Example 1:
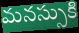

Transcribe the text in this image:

మనస్సుకి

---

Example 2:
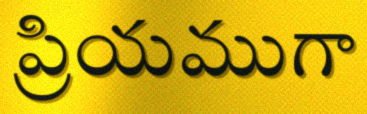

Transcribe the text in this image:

ప్రియముగా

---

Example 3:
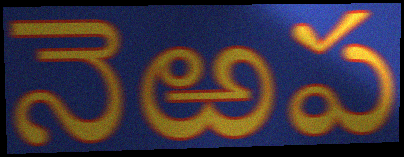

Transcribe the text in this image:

నెఱప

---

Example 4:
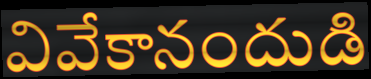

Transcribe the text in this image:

వివేకానందుడి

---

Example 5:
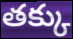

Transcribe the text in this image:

తక్కు